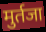
मुर्तजा